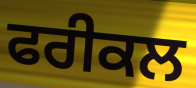
ਫਰੀਕਲ